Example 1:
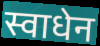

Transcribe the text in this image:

स्वाधेन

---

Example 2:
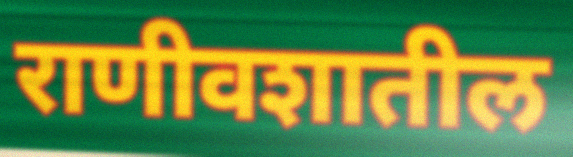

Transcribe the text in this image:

राणीवशातील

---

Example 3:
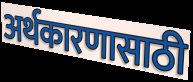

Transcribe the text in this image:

अर्थकारणासाठी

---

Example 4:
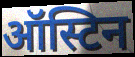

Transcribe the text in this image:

ऑस्टिन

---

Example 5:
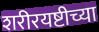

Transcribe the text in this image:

शरीरयष्टीच्या